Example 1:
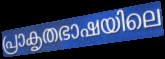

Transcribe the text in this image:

പ്രാകൃതഭാഷയിലെ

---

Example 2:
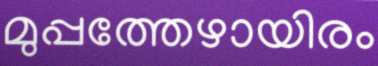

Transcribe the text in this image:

മുപ്പത്തേഴായിരം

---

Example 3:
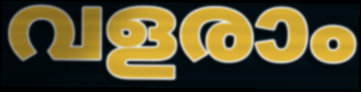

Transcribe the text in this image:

വളരാം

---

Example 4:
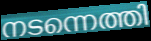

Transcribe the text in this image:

നടന്നെത്തി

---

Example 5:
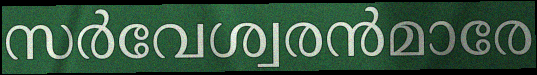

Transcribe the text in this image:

സർവേശ്വരൻമാരേ